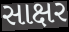
સાક્ષર